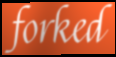
forked